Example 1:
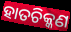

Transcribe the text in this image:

ହାତଚିକ୍କଣ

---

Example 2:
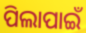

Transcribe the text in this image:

ପିଲାପାଇଁ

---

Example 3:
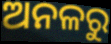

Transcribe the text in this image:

ଅନଳରୁ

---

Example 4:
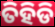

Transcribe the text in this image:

ତିହିଡି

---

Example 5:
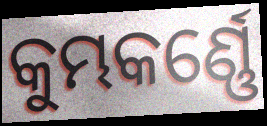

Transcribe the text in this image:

କୁମ୍ଭକର୍ଣ୍ଣେ